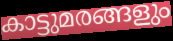
കാട്ടുമരങ്ങളും